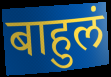
बाहुलं